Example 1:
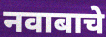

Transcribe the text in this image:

नवाबाचे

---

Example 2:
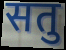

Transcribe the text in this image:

सतु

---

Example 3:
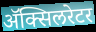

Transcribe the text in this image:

ॲक्सिलरेटर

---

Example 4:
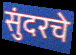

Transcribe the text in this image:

सुंदरचे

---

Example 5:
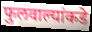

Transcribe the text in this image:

फुलवाल्यांकडे